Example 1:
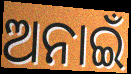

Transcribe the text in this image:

ଅନାଇଁ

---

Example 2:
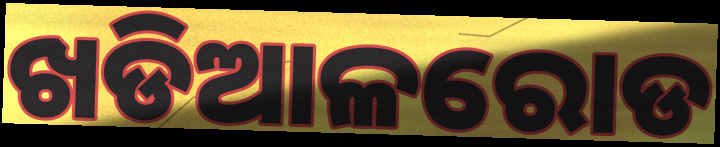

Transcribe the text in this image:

ଖଡିଆଳରୋଡ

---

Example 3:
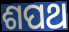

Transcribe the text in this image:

ଶପଥ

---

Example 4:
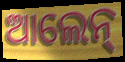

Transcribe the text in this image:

ଆଲେନ୍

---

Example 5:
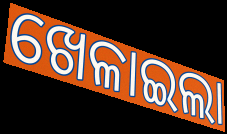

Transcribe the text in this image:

ଖେଳାଇଲା